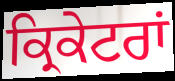
ਕ੍ਰਿਕੇਟਰਾਂ